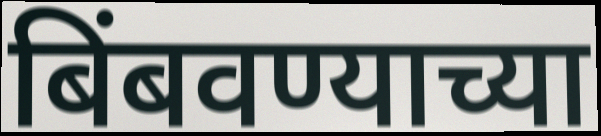
बिंबवण्याच्या